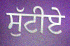
ਸੁੱਟੀਏ